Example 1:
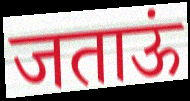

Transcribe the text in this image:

जताऊं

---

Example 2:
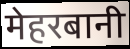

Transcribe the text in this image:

मेहरबानी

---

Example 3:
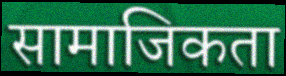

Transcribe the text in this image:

सामाजिकता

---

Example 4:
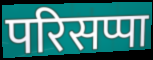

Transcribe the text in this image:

परिसप्पा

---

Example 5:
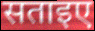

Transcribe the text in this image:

सताइए